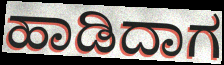
ಹಾಡಿದಾಗ